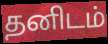
தனிடம்